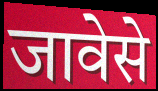
जावेसे